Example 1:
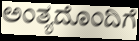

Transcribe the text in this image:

ಅಂತ್ಯದೊಂದಿಗೆ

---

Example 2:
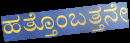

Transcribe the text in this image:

ಹತ್ತೊಂಬತ್ತನೇ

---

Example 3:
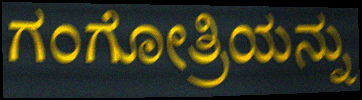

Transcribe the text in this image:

ಗಂಗೋತ್ರಿಯನ್ನು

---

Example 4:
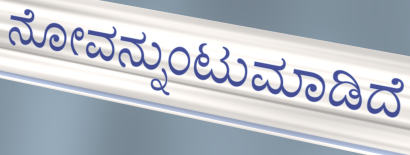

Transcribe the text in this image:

ನೋವನ್ನುಂಟುಮಾಡಿದೆ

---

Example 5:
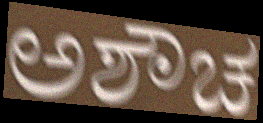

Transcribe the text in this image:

ಅಶೌಚ